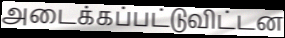
அடைக்கப்பட்டுவிட்டன